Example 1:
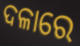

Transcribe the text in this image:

ଦଳାରେ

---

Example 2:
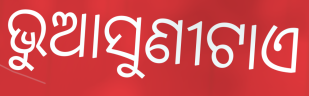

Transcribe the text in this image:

ଭୁଆସୁଣୀଟାଏ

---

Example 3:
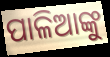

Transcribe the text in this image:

ପାଳିଆଙ୍କୁ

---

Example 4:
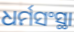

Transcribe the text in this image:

ଧର୍ମସଂସ୍ଥା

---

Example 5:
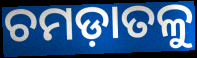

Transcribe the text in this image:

ଚମଡ଼ାତଳୁ